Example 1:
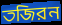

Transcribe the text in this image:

তজিরন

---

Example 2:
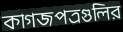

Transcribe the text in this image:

কাগজপত্রগুলির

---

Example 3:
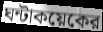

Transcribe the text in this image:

ঘন্টাকয়েকের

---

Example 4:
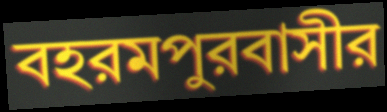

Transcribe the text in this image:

বহরমপুরবাসীর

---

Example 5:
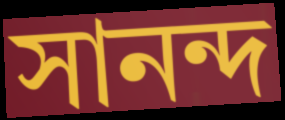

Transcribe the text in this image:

সানন্দ